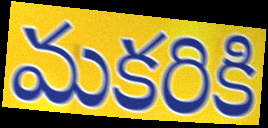
మకరికి